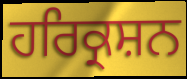
ਹਰਿਕ੍ਰਸ਼ਨ